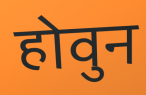
होवुन